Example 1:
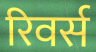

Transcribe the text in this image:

रिवर्स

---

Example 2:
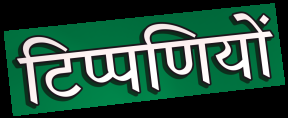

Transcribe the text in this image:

टिप्पणियों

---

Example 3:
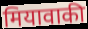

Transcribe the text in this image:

मियावाकी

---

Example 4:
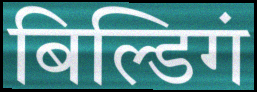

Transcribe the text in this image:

बिल्डिगं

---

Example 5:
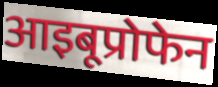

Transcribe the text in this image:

आइबूप्रोफेन